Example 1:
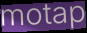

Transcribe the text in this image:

motap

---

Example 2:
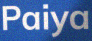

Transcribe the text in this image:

Paiya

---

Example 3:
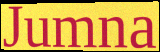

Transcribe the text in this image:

Jumna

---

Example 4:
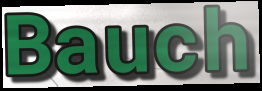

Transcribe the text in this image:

Bauch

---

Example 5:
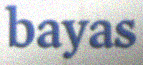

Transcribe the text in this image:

bayas